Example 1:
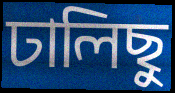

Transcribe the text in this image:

ঢালিছু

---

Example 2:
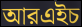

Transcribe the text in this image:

আরএইচ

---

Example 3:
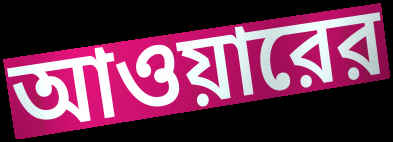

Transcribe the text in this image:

আওয়ারের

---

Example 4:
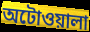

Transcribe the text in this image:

অটোওয়ালা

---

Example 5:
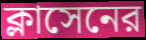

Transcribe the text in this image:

ক্লাসেনের